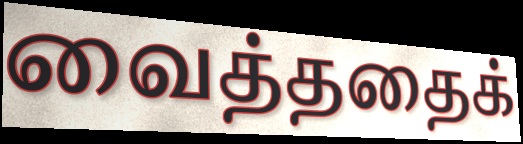
வைத்ததைக்